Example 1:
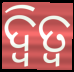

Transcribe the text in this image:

ଦ୍ୱିତ୍ୱ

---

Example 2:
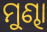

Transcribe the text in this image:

ମୁଣ୍ଢା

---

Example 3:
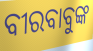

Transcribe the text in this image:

ବୀରବାବୁଙ୍କ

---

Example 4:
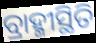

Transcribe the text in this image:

ବ୍ରାହ୍ମୀସ୍ଥିତି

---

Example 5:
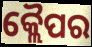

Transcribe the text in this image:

କ୍ଲୈପର